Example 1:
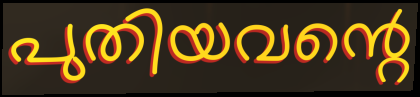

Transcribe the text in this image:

പുതിയവന്റെ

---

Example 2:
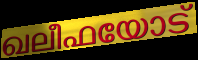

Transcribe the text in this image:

ഖലീഫയോട്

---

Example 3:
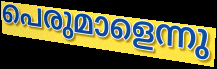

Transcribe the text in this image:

പെരുമാളെന്നു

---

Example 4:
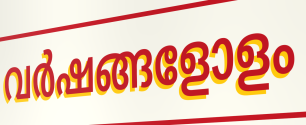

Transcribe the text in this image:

വർഷങ്ങളോളം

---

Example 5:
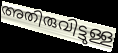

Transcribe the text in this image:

അതിരുവിട്ടുള്ള